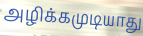
அழிக்கமுடியாது